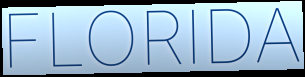
FLORIDA